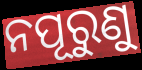
ନପୂରୁଣୁ